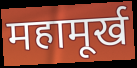
महामूर्ख